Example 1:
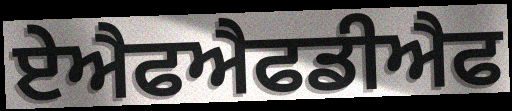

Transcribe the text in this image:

ਏਐਫਐਫਡੀਐਫ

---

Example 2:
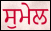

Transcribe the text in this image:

ਸੁਮੇਲ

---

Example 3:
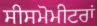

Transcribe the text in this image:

ਸੀਸਮੋਮੀਟਰਾਂ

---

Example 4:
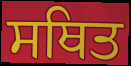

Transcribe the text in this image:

ਸਥਿਤ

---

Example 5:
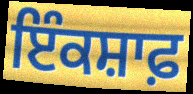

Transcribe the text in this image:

ਇੰਕਸ਼ਾਫ਼